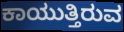
ಕಾಯುತ್ತಿರುವ